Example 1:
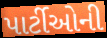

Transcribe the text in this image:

પાર્ટીઓની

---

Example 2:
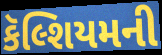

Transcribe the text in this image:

કૅલ્શિયમની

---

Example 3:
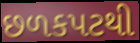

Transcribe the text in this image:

છળકપટથી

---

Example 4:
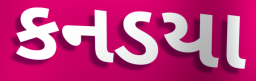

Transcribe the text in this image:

કનડયા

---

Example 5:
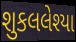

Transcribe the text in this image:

શુકલલેશ્યા